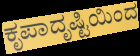
ಕೃಪಾದೃಷ್ಟಿಯಿಂದ